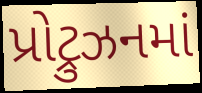
પ્રોટ્રુઝનમાં